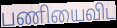
பணியைவிட